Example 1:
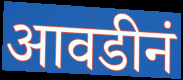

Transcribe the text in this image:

आवडीनं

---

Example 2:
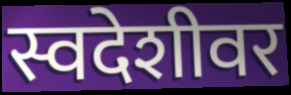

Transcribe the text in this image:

स्वदेशीवर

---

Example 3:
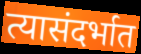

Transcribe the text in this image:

त्यासंदर्भात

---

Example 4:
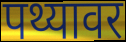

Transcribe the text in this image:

पथ्यावर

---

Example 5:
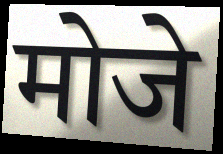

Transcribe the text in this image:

मोजे